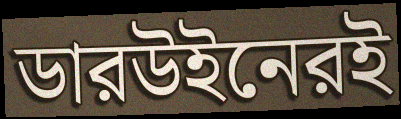
ডারউইনেরই